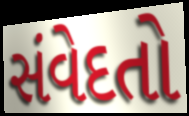
સંવેદતો